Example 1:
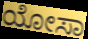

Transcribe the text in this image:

ಯೋಸಾ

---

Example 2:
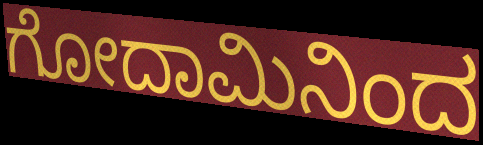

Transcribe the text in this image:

ಗೋದಾಮಿನಿಂದ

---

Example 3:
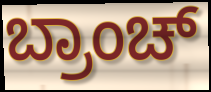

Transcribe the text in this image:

ಬ್ರಾಂಚ್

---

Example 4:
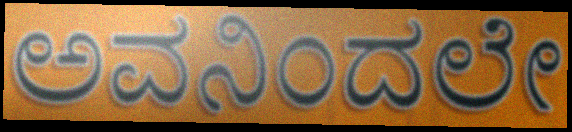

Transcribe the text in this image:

ಅವನಿಂದಲೇ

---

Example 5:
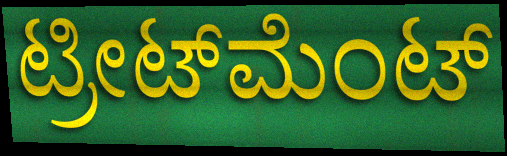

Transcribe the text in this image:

ಟ್ರೀಟ್‌ಮೆಂಟ್